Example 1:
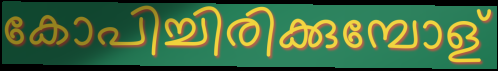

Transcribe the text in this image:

കോപിച്ചിരിക്കുമ്പോള്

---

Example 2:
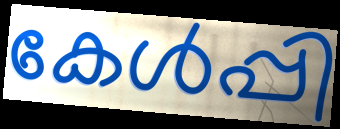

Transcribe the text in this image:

കേൾപ്പി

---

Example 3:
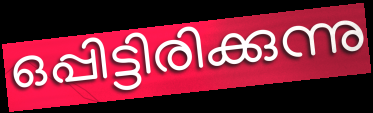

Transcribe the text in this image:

ഒപ്പിട്ടിരിക്കുന്നു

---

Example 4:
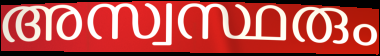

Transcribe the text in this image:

അസ്വസ്ഥരും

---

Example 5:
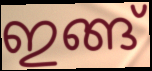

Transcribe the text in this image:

ഇങ്ങ്